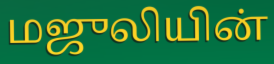
மஜுலியின்